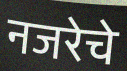
नजरेचे